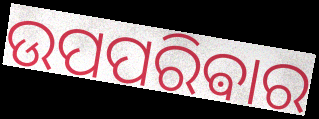
ଉପପରିଵାର